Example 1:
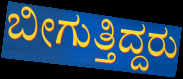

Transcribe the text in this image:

ಬೀಗುತ್ತಿದ್ದರು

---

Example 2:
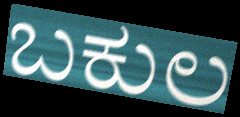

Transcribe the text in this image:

ಬಕುಲ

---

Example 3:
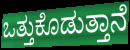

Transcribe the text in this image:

ಒತ್ತುಕೊಡುತ್ತಾನೆ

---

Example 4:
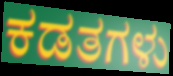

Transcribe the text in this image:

ಕಡತಗಳು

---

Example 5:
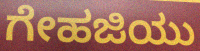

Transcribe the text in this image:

ಗೇಹಜಿಯು